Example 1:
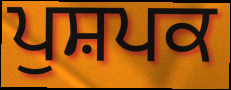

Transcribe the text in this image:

ਪੁਸ਼ਪਕ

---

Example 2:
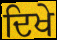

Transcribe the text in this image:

ਦਿਖੇ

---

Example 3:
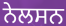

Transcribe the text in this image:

ਨੇਲਸਨ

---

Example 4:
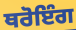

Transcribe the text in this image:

ਥਰੋਇੰਗ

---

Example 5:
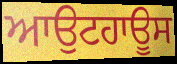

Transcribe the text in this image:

ਆਉਟਹਾਊਸ